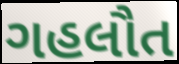
ગહલૌત